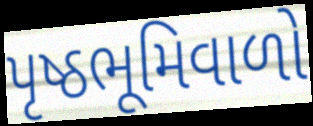
પૃષ્ઠભૂમિવાળો